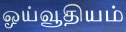
ஓய்வூதியம்